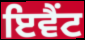
ਇਵੈਂਟ